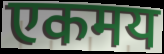
एकमय